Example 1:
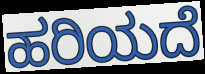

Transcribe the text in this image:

ಹರಿಯದೆ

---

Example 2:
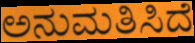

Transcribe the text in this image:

ಅನುಮತಿಸಿದೆ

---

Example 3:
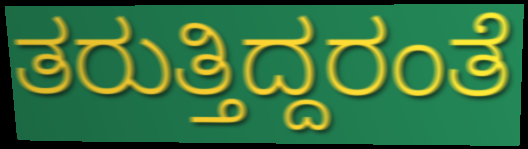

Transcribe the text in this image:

ತರುತ್ತಿದ್ದರಂತೆ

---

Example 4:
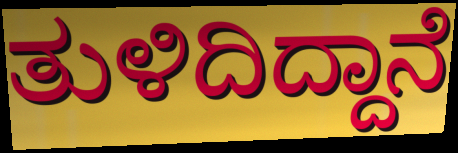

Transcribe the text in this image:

ತುಳಿದಿದ್ದಾನೆ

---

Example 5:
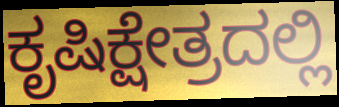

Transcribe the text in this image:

ಕೃಷಿಕ್ಷೇತ್ರದಲ್ಲಿ